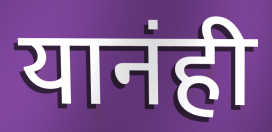
यानंही